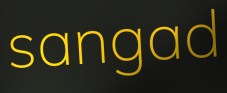
sangad